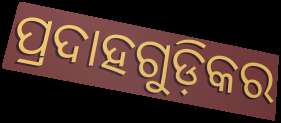
ପ୍ରଦାହଗୁଡ଼ିକର